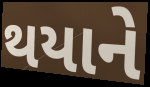
થયાને